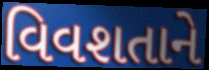
વિવશતાને